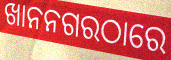
ଖାନନଗରଠାରେ